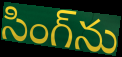
సింగ్‌ను